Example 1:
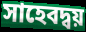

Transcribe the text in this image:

সাহেবদ্বয়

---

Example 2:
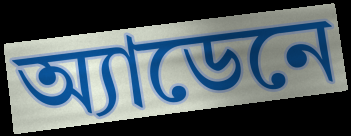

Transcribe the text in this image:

অ্যাডেনে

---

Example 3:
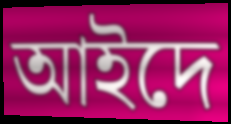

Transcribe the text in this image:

আইদে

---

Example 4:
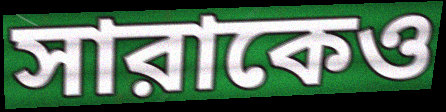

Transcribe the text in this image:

সারাকেও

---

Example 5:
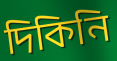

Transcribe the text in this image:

দিকিনি